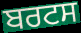
ਬਰਟਸ